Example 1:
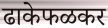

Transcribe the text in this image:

ढाकेफळकर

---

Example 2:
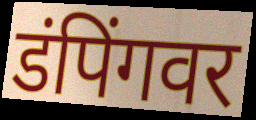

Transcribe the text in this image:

डंपिंगवर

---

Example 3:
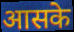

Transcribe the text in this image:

आसके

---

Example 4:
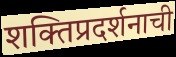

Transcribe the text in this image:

शक्तिप्रदर्शनाची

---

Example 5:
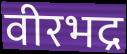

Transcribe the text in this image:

वीरभद्र